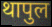
थापुल